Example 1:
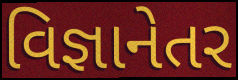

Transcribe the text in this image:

વિજ્ઞાનેતર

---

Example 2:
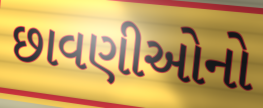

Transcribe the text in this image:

છાવણીઓનો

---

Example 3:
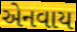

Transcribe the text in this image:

એનવાય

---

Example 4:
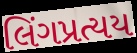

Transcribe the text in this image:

લિંગપ્રત્યય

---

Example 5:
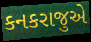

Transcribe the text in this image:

કનકરાજુએ